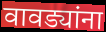
वावड्यांना